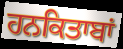
ਹਨਕਿਤਾਬਾਂ